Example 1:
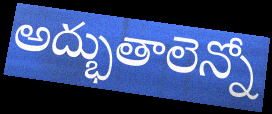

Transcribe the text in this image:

అద్భుతాలెన్నో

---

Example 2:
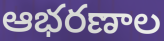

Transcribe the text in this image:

ఆభరణాల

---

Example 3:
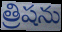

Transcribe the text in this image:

త్రిషను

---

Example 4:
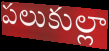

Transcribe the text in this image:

పలుకుల్లా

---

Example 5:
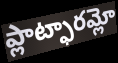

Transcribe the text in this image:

ప్లాట్ఫారమ్లో